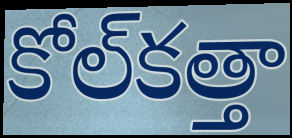
కోల్‌కత్తా